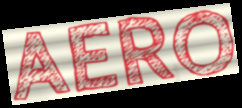
AERO